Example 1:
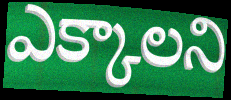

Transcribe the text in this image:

ఎక్కాలని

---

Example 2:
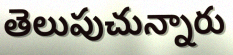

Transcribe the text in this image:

తెలుపుచున్నారు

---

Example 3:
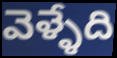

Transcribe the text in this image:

వెళ్ళేది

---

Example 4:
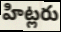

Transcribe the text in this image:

హిట్లరు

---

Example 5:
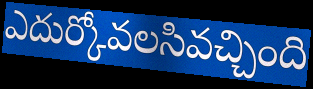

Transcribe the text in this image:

ఎదుర్కోవలసివచ్చింది